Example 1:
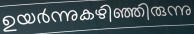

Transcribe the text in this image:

ഉയർന്നുകഴിഞ്ഞിരുന്നു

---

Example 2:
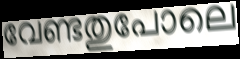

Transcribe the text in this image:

വേണ്ടതുപോലെ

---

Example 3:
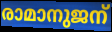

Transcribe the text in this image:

രാമാനുജന്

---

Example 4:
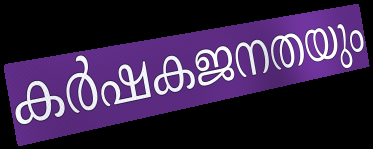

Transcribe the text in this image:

കർഷകജനതയും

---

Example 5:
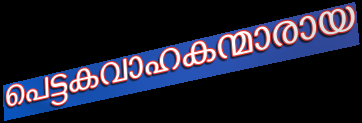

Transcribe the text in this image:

പെട്ടകവാഹകന്മാരായ